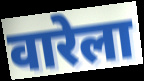
वारेला